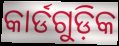
କାର୍ଡଗୁଡ଼ିକ